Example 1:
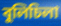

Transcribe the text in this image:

বুলিচিলা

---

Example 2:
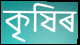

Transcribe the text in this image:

কৃষিৰ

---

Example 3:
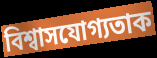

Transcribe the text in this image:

বিশ্বাসযোগ্যতাক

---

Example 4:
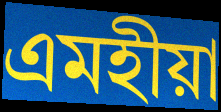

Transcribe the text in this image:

এমহীয়া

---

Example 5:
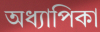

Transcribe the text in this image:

অধ্যাপিকা